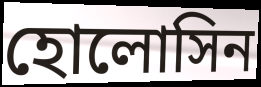
হোলোসিন